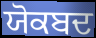
ਯੋਕਬਦ